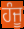
ਹੰਜੂ